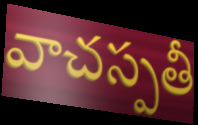
వాచస్పతీ